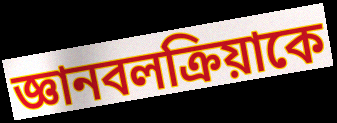
জ্ঞানবলক্রিয়াকে